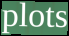
plots